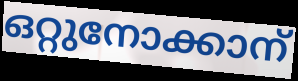
ഒറ്റുനോക്കാന്